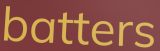
batters